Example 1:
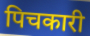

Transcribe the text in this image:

पिचकारी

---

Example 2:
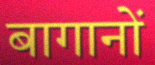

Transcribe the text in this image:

बागानों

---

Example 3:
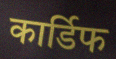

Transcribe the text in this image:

कार्डिफ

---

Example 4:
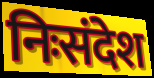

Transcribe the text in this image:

निःसंदेश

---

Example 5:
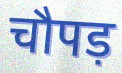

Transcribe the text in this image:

चौपड़